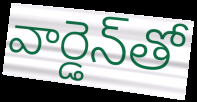
వార్డెన్‌తో